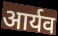
आर्यव